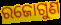
ରଜୋଗୁଣ